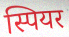
स्पियर